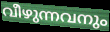
വീഴുന്നവനും